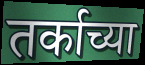
तर्काच्या